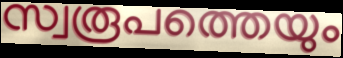
സ്വരൂപത്തെയും